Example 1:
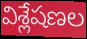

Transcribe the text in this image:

విశ్లేషణల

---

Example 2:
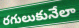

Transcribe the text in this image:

రగులుకునేలా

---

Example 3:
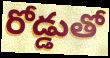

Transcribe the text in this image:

రోడ్డుతో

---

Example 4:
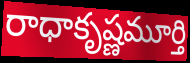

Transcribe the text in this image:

రాధాకృష్ణమూర్తి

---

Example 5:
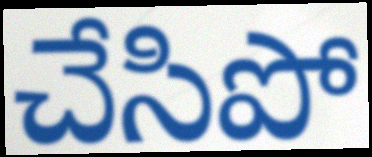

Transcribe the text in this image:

చేసిపో